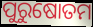
ପୁରୁଷୋତମ